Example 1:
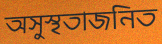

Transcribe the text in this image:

অসুস্থতাজনিত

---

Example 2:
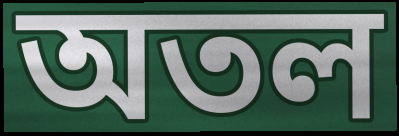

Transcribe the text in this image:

অতল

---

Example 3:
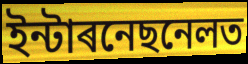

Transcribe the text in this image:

ইন্টাৰনেছনেলত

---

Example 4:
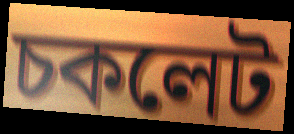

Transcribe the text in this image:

চকলেট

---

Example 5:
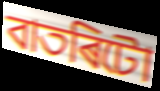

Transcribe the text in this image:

বাতৰিটো